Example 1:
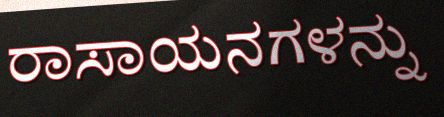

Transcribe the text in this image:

ರಾಸಾಯನಗಳನ್ನು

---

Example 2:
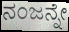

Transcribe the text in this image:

ನಂಜನ್ನೇ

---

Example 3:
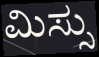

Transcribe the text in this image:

ಮಿಸ್ಸು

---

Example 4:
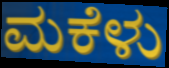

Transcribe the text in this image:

ಮಕೆಳು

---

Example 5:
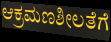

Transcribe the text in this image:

ಆಕ್ರಮಣಶೀಲತೆಗೆ